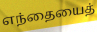
எந்தையைத்